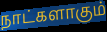
நாட்களாகும்